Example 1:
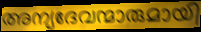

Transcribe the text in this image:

അന്യദേവന്മാരുമായി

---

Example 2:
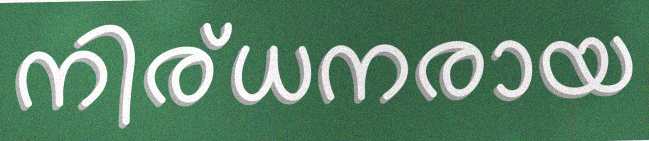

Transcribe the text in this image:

നിര്ധനരായ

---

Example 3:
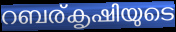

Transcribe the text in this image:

റബര്കൃഷിയുടെ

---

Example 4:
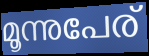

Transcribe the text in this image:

മൂന്നുപേര്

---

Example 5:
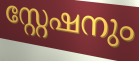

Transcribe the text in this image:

സ്റ്റേഷനും